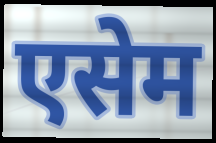
एसेम